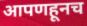
आपणहूनच